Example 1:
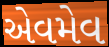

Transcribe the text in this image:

એવમેવ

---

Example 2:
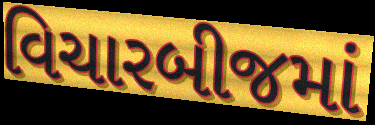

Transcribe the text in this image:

વિચારબીજમાં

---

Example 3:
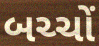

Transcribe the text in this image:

બચ્ચોં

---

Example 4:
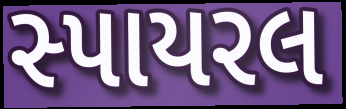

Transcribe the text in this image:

સ્પાયરલ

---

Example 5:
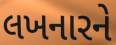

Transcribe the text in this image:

લખનારને